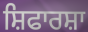
ਸ਼ਿਫਾਰਸ਼ਾ